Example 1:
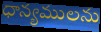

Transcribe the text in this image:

ధాన్యములను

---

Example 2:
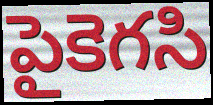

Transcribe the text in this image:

పైకెగసి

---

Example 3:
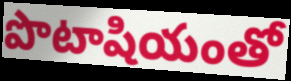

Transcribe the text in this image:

పొటాషియంతో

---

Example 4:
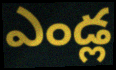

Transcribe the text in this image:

ఎండ్ల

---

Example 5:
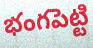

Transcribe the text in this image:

భంగపెట్టి